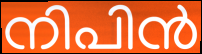
നിപിൻ